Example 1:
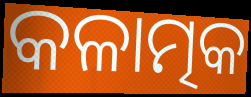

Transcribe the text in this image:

କଳାତ୍ମକ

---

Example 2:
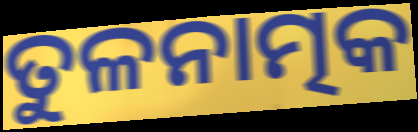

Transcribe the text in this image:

ତୁଳନାତ୍ମକ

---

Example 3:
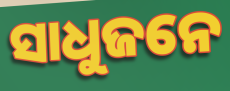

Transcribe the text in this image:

ସାଧୁଜନେ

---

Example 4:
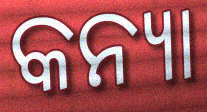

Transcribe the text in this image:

କନ୍ୟା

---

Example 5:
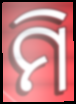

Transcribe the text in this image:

ମି